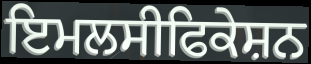
ਇਮਲਸੀਫਿਕੇਸ਼ਨ